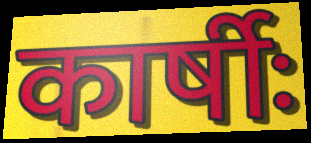
कार्षीः